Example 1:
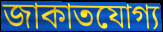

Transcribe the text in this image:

জাকাতযোগ্য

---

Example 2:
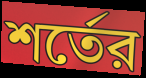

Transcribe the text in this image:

শর্তের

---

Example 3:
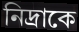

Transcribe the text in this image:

নিদ্রাকে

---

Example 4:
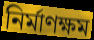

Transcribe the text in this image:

নির্মাণক্ষম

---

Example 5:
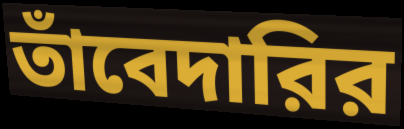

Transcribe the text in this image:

তাঁবেদারির